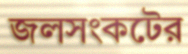
জলসংকটের